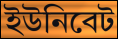
ইউনিবেট